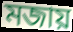
মজায়